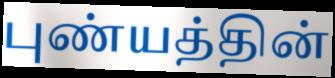
புண்யத்தின்